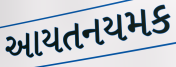
આયતનયમક